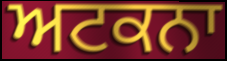
ਅਟਕਨਾ